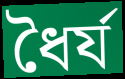
ধৈৰ্য